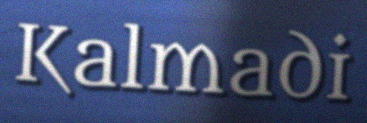
Kalmadi